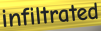
infiltrated